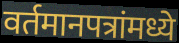
वर्तमानपत्रांमध्ये